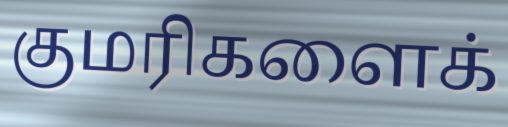
குமரிகளைக்